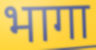
भागा